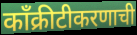
काँक्रीटीकरणाची